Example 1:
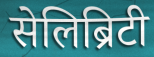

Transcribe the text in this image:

सेलिब्रिटी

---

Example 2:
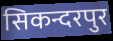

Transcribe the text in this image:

सिकन्दरपुर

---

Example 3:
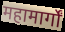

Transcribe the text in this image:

महामार्गों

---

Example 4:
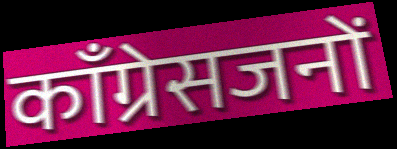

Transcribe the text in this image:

कॉंग्रेसजनों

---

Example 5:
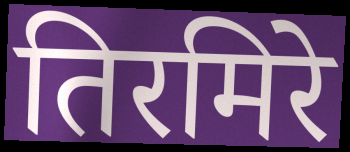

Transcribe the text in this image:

तिरमिरे